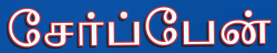
சேர்ப்பேன்